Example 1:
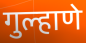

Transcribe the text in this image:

गुल्हाणे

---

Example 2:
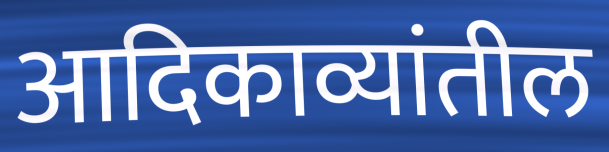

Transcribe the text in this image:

आदिकाव्यांतील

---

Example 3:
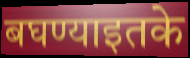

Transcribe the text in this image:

बघण्याइतके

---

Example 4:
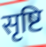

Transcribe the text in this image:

सृष्टि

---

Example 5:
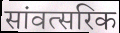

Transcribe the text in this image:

सांवत्सरिक